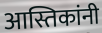
आस्तिकांनी